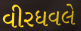
વીરધવલે